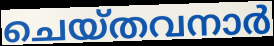
ചെയ്തവനാർ